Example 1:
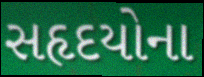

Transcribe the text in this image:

સહૃદયોના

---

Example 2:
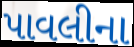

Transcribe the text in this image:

પાવલીના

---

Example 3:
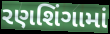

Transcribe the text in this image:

રણશિંગામાં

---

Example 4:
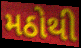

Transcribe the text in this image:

મઠોથી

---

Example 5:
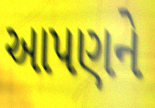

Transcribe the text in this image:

આપણને